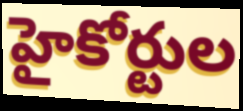
హైకోర్టుల